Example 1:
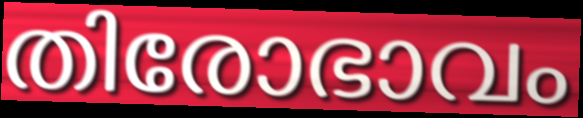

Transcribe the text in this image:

തിരോഭാവം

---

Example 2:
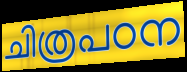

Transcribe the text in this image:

ചിത്രപഠന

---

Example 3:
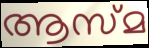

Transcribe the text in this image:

ആസ്മ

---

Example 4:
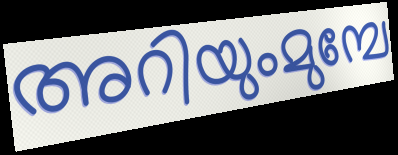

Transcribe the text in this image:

അറിയുംമുമ്പേ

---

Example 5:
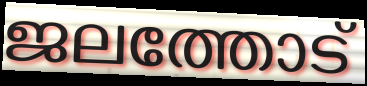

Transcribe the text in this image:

ജലത്തോട്